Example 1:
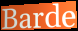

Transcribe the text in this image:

Barde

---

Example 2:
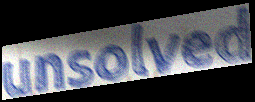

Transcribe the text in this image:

unsolved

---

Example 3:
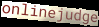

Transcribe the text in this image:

onlinejudge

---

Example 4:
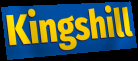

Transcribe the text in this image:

Kingshill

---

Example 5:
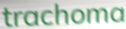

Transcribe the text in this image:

trachoma